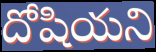
దోషియని